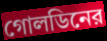
গোলডিনের